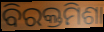
ବିରକ୍ତମିଶା